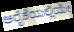
ಆರೈಕೆಯಲ್ಲಿಯೇ